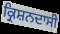
ਕ੍ਰਿਸ਼ਨਦਾਸੀ